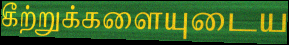
கீற்றுக்களையுடைய